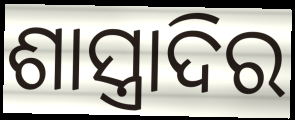
ଶାସ୍ତ୍ରାଦିର